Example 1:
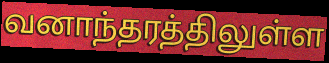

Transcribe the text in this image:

வனாந்தரத்திலுள்ள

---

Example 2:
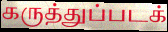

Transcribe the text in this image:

கருத்துப்படக்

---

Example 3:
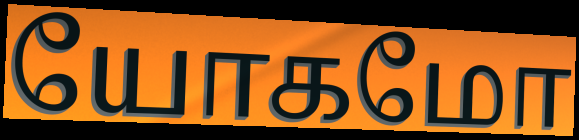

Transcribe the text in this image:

யோகமோ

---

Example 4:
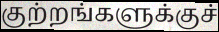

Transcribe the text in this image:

குற்றங்களுக்குச்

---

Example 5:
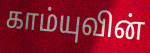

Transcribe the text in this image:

காம்யுவின்